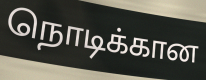
நொடிக்கான